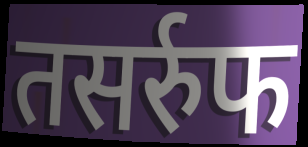
तसर्रुफ